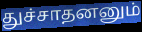
துச்சாதனனும்